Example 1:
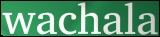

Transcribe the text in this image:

wachala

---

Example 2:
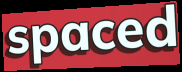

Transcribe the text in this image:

spaced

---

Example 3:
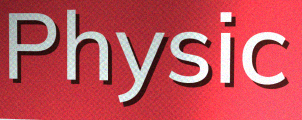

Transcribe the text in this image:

Physic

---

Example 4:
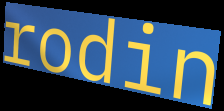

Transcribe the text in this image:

rodin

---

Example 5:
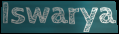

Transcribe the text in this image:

Iswarya